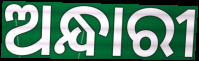
ଅନ୍ଧାରୀ